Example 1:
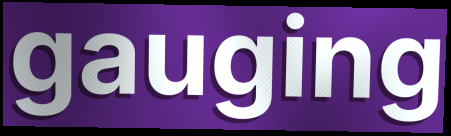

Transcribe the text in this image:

gauging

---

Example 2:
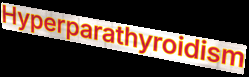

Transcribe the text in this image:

Hyperparathyroidism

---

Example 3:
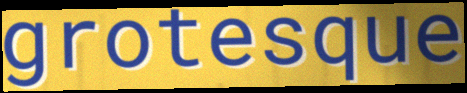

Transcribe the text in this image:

grotesque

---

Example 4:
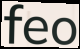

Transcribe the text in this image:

feo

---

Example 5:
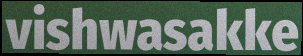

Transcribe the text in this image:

vishwasakke